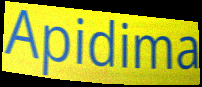
Apidima